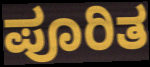
ಪೂರಿತ